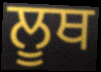
ਲੂਥ